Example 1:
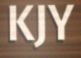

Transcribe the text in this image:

KJY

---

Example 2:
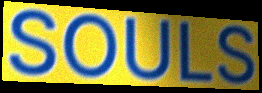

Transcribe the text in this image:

SOULS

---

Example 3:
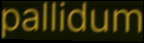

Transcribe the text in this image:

pallidum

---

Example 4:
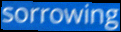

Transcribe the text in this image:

sorrowing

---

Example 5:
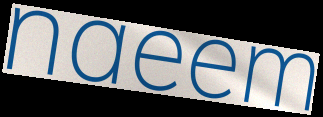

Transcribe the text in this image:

naeem